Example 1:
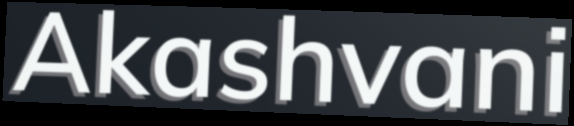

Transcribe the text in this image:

Akashvani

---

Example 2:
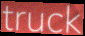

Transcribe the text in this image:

truck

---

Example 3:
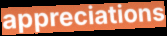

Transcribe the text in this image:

appreciations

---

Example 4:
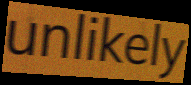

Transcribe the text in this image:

unlikely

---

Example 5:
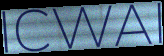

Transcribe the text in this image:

ICWAI